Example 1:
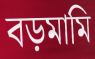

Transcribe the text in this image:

বড়মামি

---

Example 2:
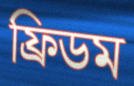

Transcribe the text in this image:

ফ্রিডম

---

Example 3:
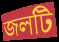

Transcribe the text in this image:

জলটি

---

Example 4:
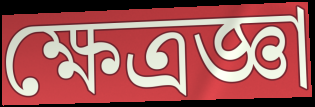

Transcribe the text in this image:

ক্ষেত্রজ্ঞা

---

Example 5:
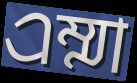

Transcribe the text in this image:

এম্মা